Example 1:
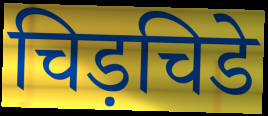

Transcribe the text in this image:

चिड़चिडे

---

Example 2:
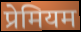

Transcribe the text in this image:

प्रेमियम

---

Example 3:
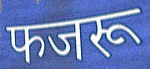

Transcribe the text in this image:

फजरू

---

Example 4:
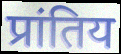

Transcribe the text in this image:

प्रांतिय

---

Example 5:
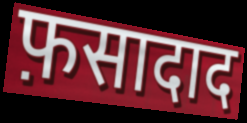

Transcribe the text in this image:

फ़सादाद